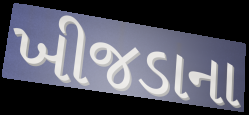
ખીજડાના